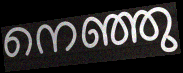
നെഞ്ഞു